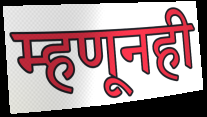
म्‍हणूनही